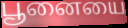
பூனையை